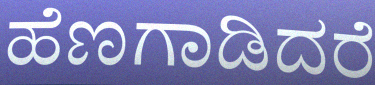
ಹೆಣಗಾಡಿದರೆ